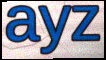
ayz